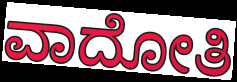
ವಾದೋತಿ